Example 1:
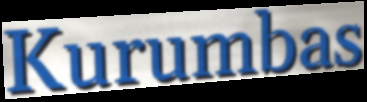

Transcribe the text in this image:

Kurumbas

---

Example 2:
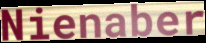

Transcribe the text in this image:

Nienaber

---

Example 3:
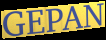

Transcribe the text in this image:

GEPAN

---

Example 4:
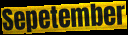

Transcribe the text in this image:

Sepetember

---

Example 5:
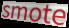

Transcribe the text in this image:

smote